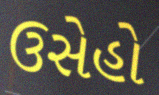
ઉસેહો